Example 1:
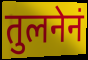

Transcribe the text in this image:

तुलनेनं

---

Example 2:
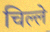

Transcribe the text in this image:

चिल्ले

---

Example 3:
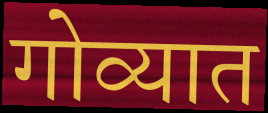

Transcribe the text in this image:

गोव्यात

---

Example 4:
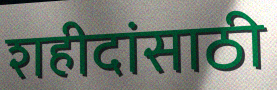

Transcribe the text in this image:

शहीदांसाठी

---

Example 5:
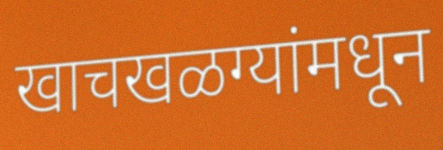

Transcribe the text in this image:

खाचखळग्यांमधून